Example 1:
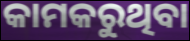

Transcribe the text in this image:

କାମକରୁଥିବା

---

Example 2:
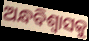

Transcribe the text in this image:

ଅନ୍ଧବିଶ୍ୱାସକୁ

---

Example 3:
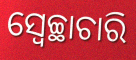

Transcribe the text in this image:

ସ୍ଵେଚ୍ଛାଚାରି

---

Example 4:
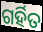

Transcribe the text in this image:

ଗର୍ହିତ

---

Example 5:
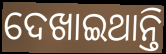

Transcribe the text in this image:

ଦେଖାଇଥାନ୍ତି